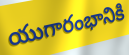
యుగారంభానికి